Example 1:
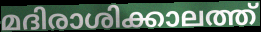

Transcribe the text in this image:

മദിരാശിക്കാലത്ത്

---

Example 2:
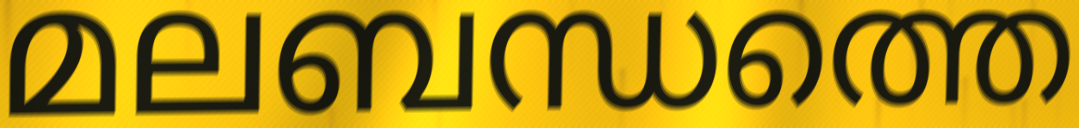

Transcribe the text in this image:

മലബന്ധത്തെ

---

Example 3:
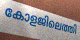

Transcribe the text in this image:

കോളജിലെത്തി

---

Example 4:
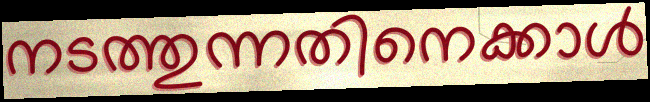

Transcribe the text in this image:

നടത്തുന്നതിനെക്കാൾ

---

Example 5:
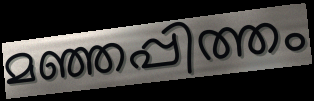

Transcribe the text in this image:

മഞ്ഞപ്പിത്തം